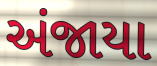
અંજાયા